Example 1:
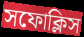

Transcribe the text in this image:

সফোক্লিস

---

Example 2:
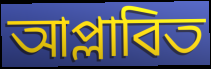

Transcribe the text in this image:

আপ্লাবিত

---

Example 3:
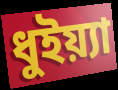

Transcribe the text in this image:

ধুইয়্যা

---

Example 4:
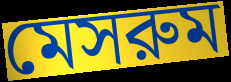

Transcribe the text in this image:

মেসরুম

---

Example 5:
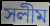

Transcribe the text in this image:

সলীম